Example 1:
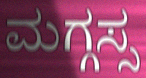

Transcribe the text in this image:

ಮಗ್ಗಸ್ಸ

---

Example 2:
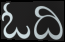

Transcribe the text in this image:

ಓದಿ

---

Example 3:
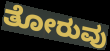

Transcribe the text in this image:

ತೋರುವು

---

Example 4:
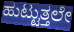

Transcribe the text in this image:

ಹುಟ್ಟುತ್ತಲೇ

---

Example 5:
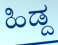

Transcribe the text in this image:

ಹಿಡ್ದ